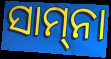
ସାମ୍‌ନା